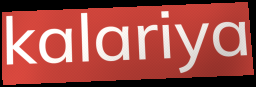
kalariya